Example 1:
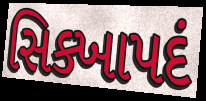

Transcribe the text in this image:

સિક્ખાપદં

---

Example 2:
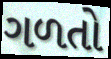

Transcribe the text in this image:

ગળતો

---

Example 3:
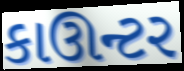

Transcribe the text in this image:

કાઊન્ટર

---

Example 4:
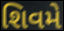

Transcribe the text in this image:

શિવમે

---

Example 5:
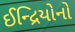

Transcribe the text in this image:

ઈન્દ્રિયોનો